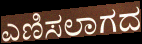
ಎಣಿಸಲಾಗದ